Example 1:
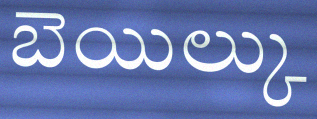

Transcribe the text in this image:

బెయిల్కు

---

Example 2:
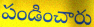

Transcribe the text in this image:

పండించారు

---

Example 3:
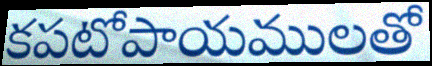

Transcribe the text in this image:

కపటోపాయములతో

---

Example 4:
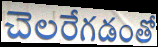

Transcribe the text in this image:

చెలరేగడంతో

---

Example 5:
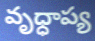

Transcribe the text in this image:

వృధ్ధాప్య